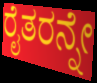
ರೈತರನ್ನೇ